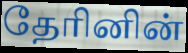
தேரினின்